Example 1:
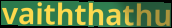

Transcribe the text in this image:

vaiththathu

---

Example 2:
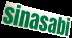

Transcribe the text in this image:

sinasabi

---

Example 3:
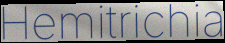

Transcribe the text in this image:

Hemitrichia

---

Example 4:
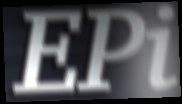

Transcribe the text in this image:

EPi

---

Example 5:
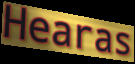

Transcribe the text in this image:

Hearas